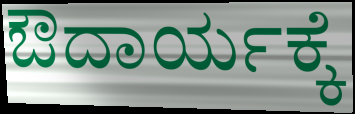
ಔದಾರ್ಯಕ್ಕೆ